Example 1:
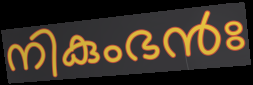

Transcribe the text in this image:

നികുംഭൻഃ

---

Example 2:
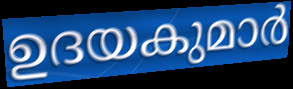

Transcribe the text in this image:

ഉദയകുമാർ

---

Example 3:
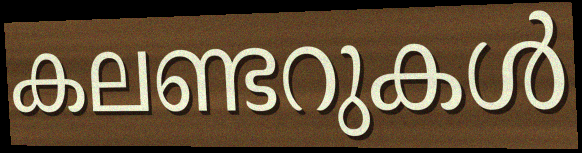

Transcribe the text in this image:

കലണ്ടറുകൾ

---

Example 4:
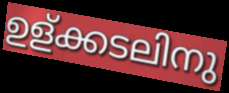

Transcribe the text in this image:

ഉള്ക്കടലിനു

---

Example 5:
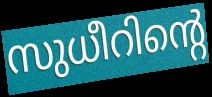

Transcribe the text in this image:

സുധീറിന്റെ